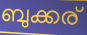
ബുക്കര്